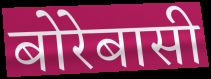
बोरेबासी